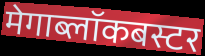
मेगाब्लॉकबस्टर